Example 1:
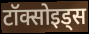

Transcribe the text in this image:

टॉक्सोइड्स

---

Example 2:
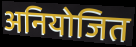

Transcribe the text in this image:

अनियोजित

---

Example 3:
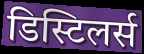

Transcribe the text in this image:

डिस्टिलर्स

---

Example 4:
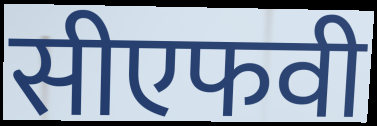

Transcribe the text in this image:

सीएफवी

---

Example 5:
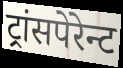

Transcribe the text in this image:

ट्रांसपेरेन्ट